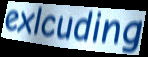
exlcuding